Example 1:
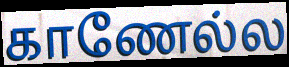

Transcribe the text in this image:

காணேல்ல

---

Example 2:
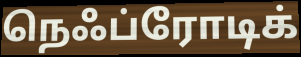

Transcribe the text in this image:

நெஃப்ரோடிக்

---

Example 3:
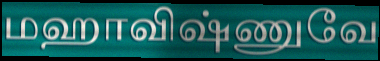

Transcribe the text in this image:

மஹாவிஷ்ணுவே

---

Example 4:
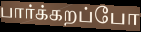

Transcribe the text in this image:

பார்க்கறப்போ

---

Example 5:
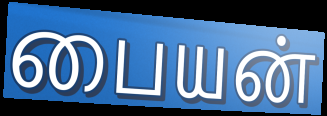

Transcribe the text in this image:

பையன்